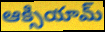
ఆక్సియామ్